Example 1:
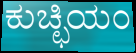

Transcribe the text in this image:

ಕುಚ್ಛಿಯಂ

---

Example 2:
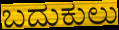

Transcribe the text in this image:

ಬದುಕುಲು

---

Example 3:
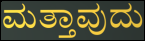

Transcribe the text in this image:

ಮತ್ತಾವುದು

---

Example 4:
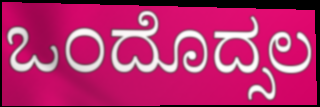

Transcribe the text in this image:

ಒಂದೊದ್ಸಲ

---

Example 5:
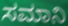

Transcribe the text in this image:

ಸಮಾನಿ